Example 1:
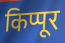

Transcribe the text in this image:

किप्पूर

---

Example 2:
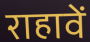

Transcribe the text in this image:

राहावें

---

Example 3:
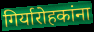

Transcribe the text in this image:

गिर्यारोहकांना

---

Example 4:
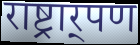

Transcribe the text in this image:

राष्ट्रार्पण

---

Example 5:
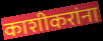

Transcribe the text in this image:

काशीकरांना